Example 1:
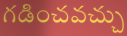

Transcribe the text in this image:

గడించవచ్చు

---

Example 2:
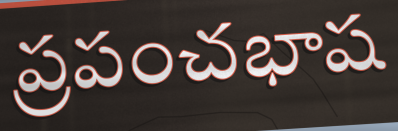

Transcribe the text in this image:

ప్రపంచభాష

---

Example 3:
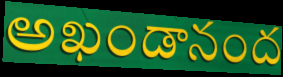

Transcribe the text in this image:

అఖండానంద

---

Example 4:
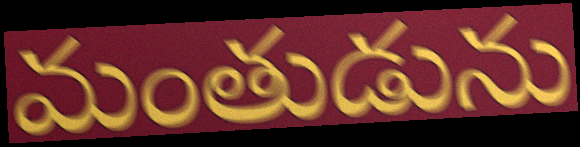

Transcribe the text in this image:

మంతుడును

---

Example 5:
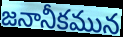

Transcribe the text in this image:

జనానీకమున